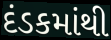
દંડકમાંથી